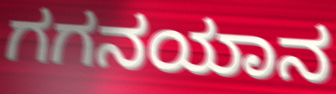
ಗಗನಯಾನ